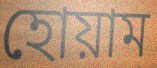
হোয়াম